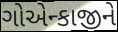
ગોએન્કાજીને